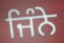
ਜਿੰਨੇ